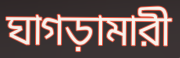
ঘাগড়ামারী